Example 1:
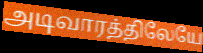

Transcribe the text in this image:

அடிவாரத்திலேயே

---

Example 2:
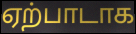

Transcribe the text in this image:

ஏற்பாடாக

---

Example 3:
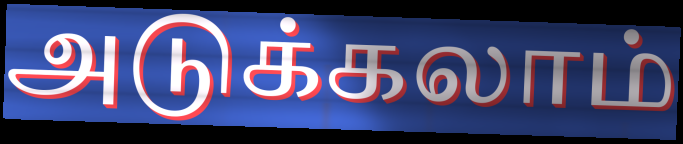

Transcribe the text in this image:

அடுக்கலாம்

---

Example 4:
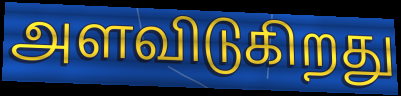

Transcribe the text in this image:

அளவிடுகிறது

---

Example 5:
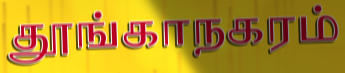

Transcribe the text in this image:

தூங்காநகரம்